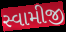
સ્વામીજી